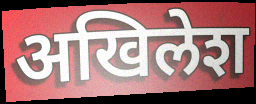
अखिलेश